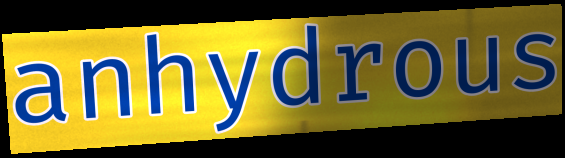
anhydrous